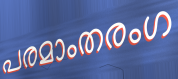
പരമാംതരംഗ